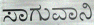
ಸಾಗುವಾನಿ